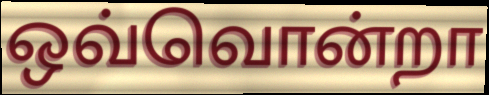
ஒவ்வொன்றா